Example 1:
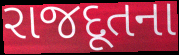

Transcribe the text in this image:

રાજદૂતના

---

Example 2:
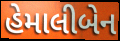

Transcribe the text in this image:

હેમાલીબેન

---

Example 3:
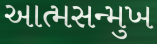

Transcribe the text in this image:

આત્મસન્મુખ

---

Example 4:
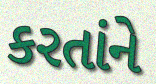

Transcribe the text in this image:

કરતાંને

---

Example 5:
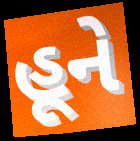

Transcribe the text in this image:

હૂને